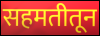
सहमतीतून